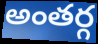
అంతర్గ